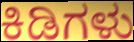
ಕಿಡಿಗಳು